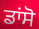
ਡਾਂਸੋ